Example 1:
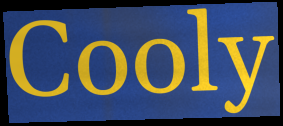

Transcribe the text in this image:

Cooly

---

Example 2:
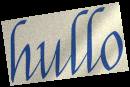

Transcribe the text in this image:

hullo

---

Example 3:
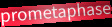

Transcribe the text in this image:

prometaphase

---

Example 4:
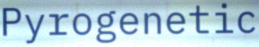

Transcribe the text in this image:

Pyrogenetic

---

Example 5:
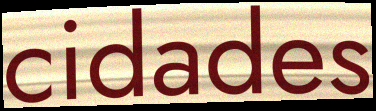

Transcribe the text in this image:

cidades